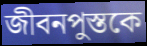
জীবনপুস্তকে